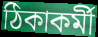
ঠিকাকর্মী